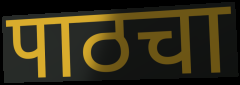
पाठचा